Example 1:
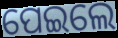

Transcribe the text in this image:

ପେଇଲେ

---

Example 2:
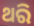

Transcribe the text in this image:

ଥରି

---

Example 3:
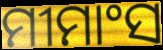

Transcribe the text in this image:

ମୀମାଂସ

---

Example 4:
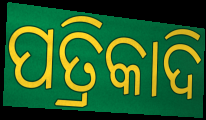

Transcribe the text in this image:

ପତ୍ରିକାଦି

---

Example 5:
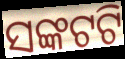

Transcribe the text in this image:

ସଙ୍କଟଟି